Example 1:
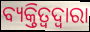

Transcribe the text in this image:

ବ୍ୟକ୍ତିତ୍ୱଦ୍ୱାରା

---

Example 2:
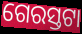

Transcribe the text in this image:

ଗେରସ୍ତଟା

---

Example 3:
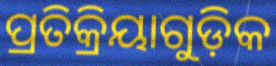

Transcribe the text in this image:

ପ୍ରତିକ୍ରିୟାଗୁଡ଼ିକ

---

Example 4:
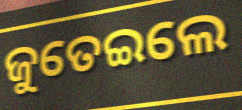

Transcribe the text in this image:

ଜୁତେଇଲେ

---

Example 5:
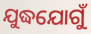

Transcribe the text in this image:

ଯୁଦ୍ଧଯୋଗୁଁ